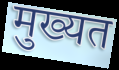
मुख्यत